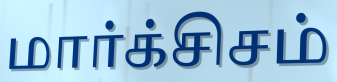
மார்க்சிசம்